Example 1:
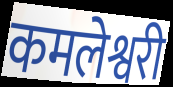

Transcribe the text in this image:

कमलेश्वरी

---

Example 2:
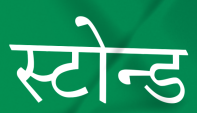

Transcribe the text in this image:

स्टोन्ड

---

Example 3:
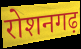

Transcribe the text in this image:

रोशनगढ़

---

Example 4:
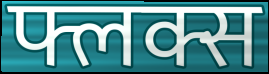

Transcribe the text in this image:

फ्लक्स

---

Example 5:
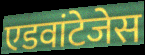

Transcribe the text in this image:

एडवांटेजेस